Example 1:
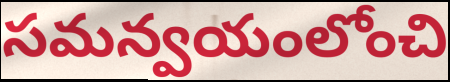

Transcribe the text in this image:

సమన్వయంలోంచి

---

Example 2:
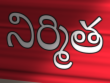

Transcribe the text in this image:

నిర్మిత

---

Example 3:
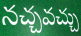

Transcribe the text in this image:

నచ్చవచ్చు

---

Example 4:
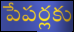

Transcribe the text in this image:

పేపర్లకు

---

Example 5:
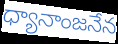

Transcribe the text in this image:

ధ్యానాంజనేన